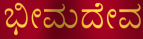
ಭೀಮದೇವ